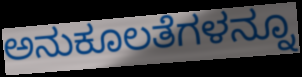
ಅನುಕೂಲತೆಗಳನ್ನೂ